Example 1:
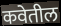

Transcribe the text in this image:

कवेतील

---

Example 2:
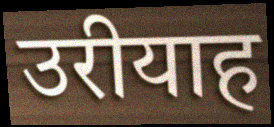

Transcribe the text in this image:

उरीयाह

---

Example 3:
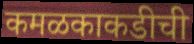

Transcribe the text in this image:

कमळकाकडीची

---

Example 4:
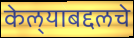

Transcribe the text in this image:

केल्याबद्दलचे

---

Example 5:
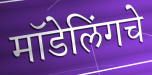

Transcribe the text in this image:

मॉडेलिंगचे